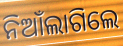
ନିଆଁଲାଗିଲେ